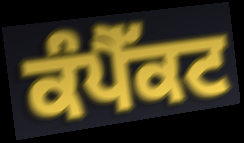
ਕੰਪੈੱਕਟ